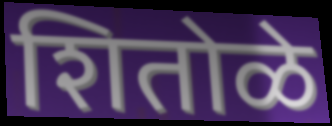
शितोळे